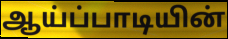
ஆய்ப்பாடியின்